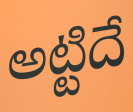
అట్టిదే